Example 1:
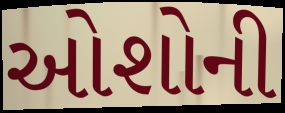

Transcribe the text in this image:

ઓશોની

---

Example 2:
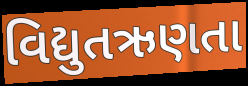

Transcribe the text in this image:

વિદ્યુતઋણતા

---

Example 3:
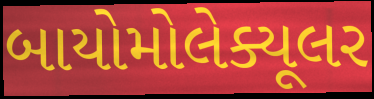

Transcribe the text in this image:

બાયોમોલેક્યૂલર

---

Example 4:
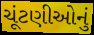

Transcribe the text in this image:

ચૂંટણીઓનું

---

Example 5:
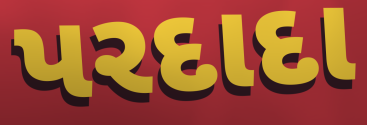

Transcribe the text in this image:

પરદાદા